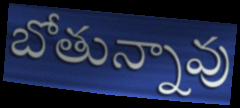
బోతున్నావు